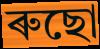
ৰুছো